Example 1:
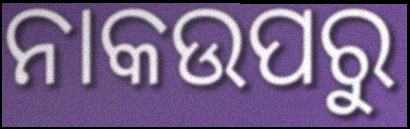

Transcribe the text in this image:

ନାକଉପରୁ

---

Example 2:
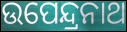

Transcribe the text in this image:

ଉପେନ୍ଦ୍ରନାଥ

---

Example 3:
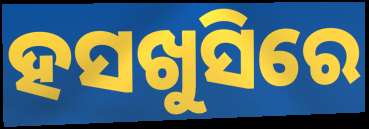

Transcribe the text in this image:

ହସଖୁସିରେ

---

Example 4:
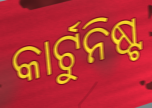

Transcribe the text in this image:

କାର୍ଟୁନିଷ୍ଟ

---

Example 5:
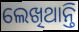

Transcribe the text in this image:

ଲେଖିଥାନ୍ତି